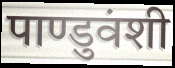
पाण्डुवंशी